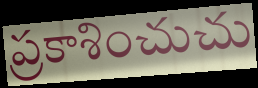
ప్రకాశించుచు